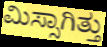
ಮಿಸ್ಸಾಗಿತ್ತು